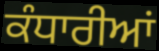
ਕੰਧਾਰੀਆਂ